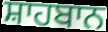
ਸ਼ਾਹਬਾਨ